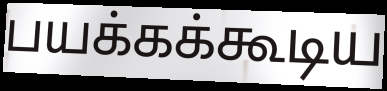
பயக்கக்கூடிய